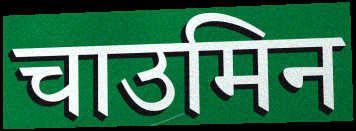
चाउमिन